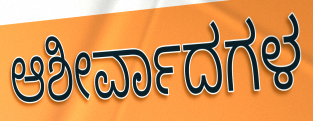
ಆಶೀರ್ವಾದಗಳ